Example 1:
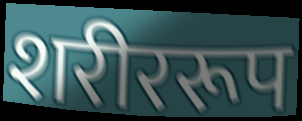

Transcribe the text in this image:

शरीररूप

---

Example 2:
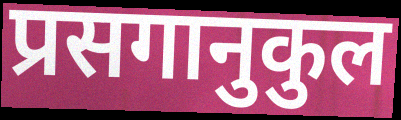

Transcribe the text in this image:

प्रसगानुकुल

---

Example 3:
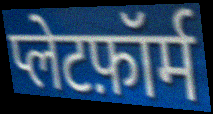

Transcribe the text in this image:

प्लेटफ़ॉर्म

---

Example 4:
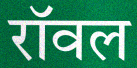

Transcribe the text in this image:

रॉवल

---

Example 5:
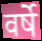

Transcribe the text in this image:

वर्षे